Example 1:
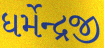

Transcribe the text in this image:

ધર્મેન્દ્રજી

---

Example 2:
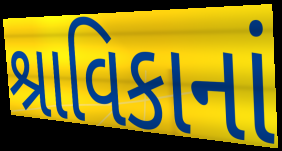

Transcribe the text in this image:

શ્રાવિકાનાં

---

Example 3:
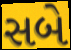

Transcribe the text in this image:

સબે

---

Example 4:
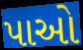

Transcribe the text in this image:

પાઓ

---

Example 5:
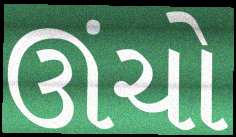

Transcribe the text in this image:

ઊંચો